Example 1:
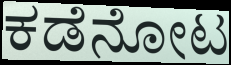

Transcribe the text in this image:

ಕಡೆನೋಟ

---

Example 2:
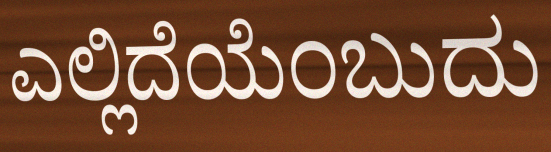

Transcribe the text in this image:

ಎಲ್ಲಿದೆಯೆಂಬುದು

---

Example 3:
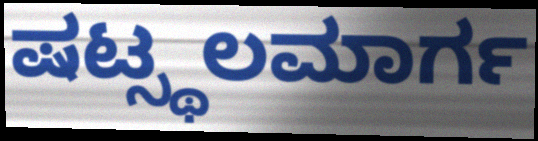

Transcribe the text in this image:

ಷಟ್ಸ್ಥಲಮಾರ್ಗ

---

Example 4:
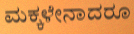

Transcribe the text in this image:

ಮಕ್ಕಳೇನಾದರೂ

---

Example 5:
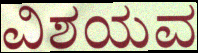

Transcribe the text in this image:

ವಿಶಯವ